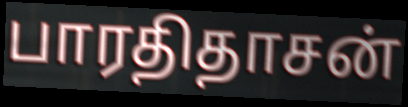
பாரதிதாசன்